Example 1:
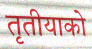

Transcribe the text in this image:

तृतीयाको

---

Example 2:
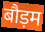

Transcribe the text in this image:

बौड़म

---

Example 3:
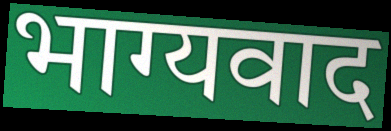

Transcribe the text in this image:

भाग्यवाद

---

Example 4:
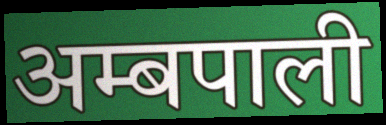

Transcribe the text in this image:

अम्बपाली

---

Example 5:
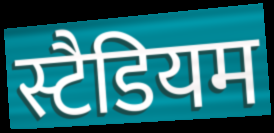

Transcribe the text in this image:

स्टैडियम